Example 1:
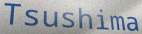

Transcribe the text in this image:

Tsushima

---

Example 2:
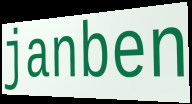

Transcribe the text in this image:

janben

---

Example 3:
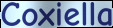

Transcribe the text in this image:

Coxiella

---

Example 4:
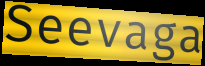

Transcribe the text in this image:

Seevaga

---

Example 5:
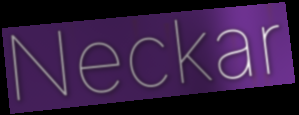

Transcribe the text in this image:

Neckar